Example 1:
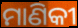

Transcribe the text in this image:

ମାଣିକୀ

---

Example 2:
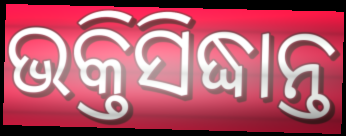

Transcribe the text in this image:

ଭକ୍ତିସିଦ୍ଧାନ୍ତ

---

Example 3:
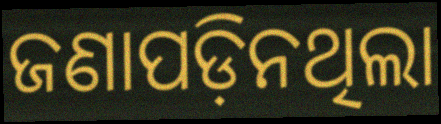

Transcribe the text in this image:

ଜଣାପଡ଼ିନଥିଲା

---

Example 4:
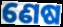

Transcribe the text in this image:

ଣେଷ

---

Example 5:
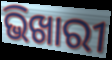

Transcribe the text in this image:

ଭିଖାରୀ